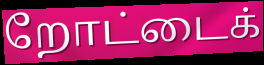
றோட்டைக்